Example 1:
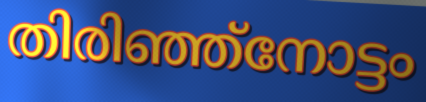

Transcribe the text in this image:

തിരിഞ്ഞ്നോട്ടം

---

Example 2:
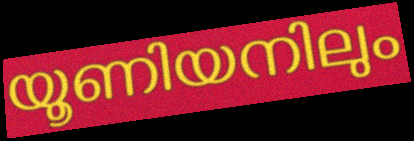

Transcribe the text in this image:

യൂണിയനിലും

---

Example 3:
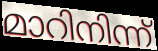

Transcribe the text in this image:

മാറിനിന്ന്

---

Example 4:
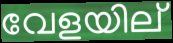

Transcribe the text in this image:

വേളയില്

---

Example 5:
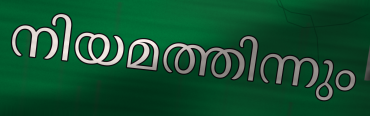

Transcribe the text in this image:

നിയമത്തിന്നും